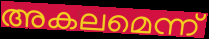
അകലമെന്ന്